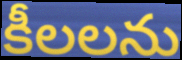
కీలలను